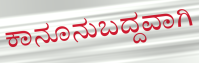
ಕಾನೂನುಬದ್ದವಾಗಿ